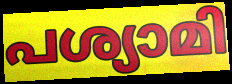
പശ്യാമി